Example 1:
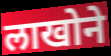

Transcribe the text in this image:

लाखोने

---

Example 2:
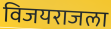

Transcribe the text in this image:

विजयराजला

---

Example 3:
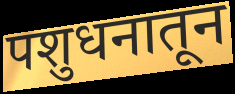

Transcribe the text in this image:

पशुधनातून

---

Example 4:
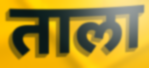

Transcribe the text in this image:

ताला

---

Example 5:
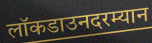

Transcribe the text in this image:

लॉकडाउनदरम्यान